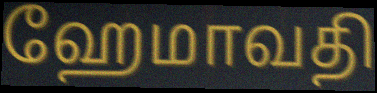
ஹேமாவதி